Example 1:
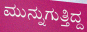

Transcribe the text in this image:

ಮುನ್ನುಗುತ್ತಿದ್ದ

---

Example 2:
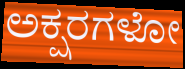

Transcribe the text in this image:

ಅಕ್ಷರಗಳೋ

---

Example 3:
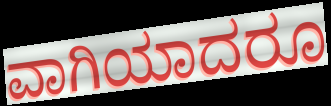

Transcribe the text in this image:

ವಾಗಿಯಾದರೂ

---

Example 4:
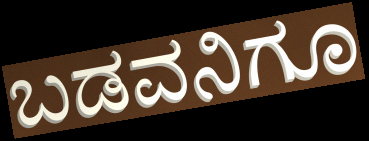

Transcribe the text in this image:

ಬಡವನಿಗೂ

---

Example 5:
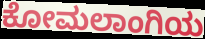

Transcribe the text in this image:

ಕೋಮಲಾಂಗಿಯ